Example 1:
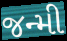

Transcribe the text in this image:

જન્મી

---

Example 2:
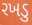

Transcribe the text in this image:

રખડુ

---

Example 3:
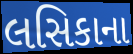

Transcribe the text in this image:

લસિકાના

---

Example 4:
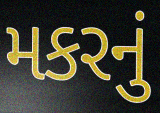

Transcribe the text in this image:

મકરનું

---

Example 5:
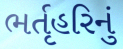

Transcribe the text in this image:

ભર્તૃહરિનું